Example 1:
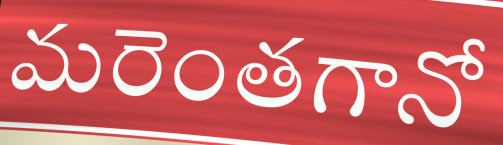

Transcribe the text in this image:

మరెంతగానో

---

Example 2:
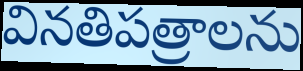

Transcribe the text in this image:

వినతిపత్రాలను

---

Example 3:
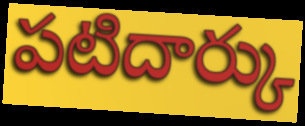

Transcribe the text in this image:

పటిదార్కు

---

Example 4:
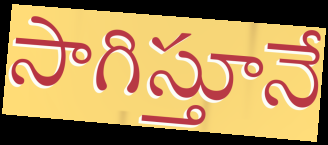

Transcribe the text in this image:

సాగిస్తూనే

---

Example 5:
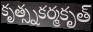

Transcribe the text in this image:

కృత్స్నకర్మకృత్